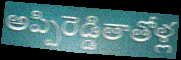
అప్పిరెడ్డితాతోళ్ల